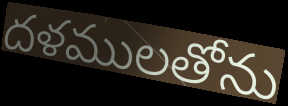
దళములతోను